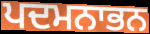
ਪਦਮਨਾਭਨ